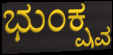
ಭುಂಕ್ಷ್ವ